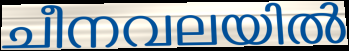
ചീനവലയിൽ